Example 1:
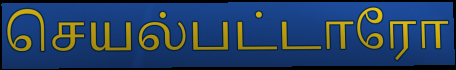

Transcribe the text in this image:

செயல்பட்டாரோ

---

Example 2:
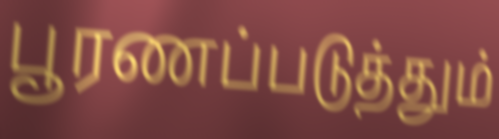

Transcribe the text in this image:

பூரணப்படுத்தும்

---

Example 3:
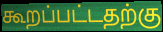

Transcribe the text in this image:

கூறப்பட்டதற்கு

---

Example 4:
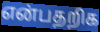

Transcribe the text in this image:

என்பதறிக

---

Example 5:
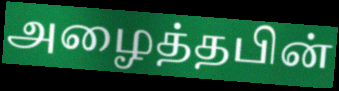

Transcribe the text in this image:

அழைத்தபின்